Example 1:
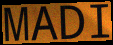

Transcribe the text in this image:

MADI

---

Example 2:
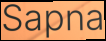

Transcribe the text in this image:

Sapna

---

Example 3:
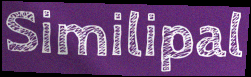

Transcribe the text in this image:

Similipal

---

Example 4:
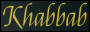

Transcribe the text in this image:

Khabbab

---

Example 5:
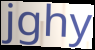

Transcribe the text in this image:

jghy